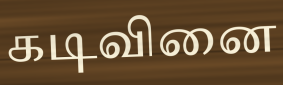
கடிவினை